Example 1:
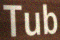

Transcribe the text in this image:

Tub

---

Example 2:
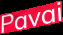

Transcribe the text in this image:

Pavai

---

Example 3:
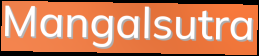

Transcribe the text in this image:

Mangalsutra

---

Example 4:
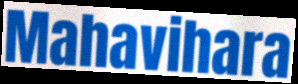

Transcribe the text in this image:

Mahavihara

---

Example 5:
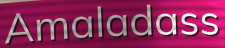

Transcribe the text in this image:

Amaladass